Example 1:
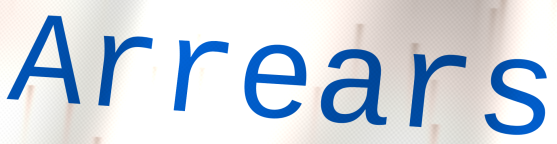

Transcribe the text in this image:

Arrears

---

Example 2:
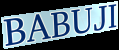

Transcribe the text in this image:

BABUJI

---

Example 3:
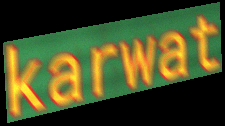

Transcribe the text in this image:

karwat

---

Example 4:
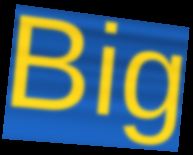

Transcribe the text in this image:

Big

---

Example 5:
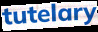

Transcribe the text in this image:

tutelary